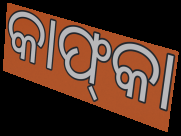
କାଫ୍‍କା